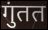
गुंतत